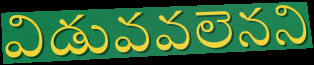
విడువవలెనని